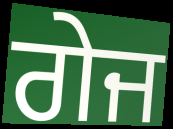
ਗੇਜ